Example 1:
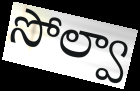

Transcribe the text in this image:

సోల్వా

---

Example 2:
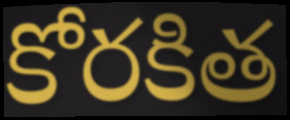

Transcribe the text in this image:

కోరకిత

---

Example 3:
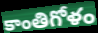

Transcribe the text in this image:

కాంతిగోళం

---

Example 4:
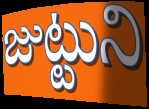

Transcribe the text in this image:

జుట్టుని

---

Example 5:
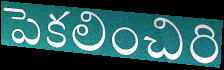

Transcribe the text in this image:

పెకలించిరి